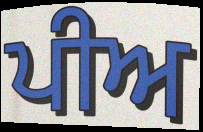
ਪੀਅ